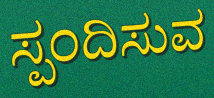
ಸ್ಪಂದಿಸುವ